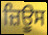
ਜ਼ਿਊਸ